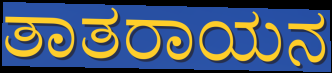
ತಾತರಾಯನ